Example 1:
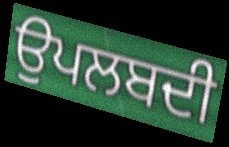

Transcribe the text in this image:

ਉਪਲਬਦੀ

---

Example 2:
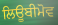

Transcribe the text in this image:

ਲਿਊਬੀਮੋਵ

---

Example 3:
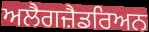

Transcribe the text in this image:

ਅਲੈਗਜ਼ੈਡਰਿਅਨ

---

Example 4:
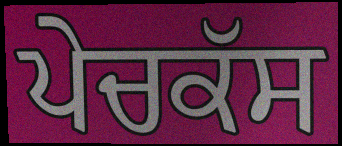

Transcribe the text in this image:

ਪੇਚਕੱਸ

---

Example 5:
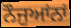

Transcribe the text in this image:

ਨੌਜੁਆਂਨਾਂ